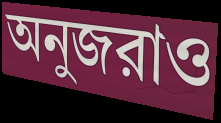
অনুজরাও